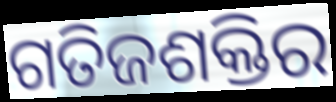
ଗତିଜଶକ୍ତିର